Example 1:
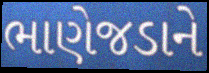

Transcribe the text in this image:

ભાણેજડાને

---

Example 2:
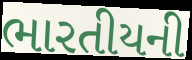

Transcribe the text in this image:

ભારતીયની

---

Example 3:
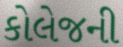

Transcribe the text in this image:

કોલેજની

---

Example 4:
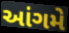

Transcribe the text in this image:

આંગમે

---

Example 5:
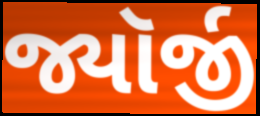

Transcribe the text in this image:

જ્યૉર્જી